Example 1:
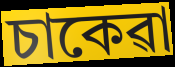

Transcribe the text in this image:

চাকেৱা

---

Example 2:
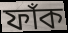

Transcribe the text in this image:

ফাঁক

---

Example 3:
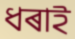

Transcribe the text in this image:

ধৰাই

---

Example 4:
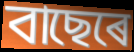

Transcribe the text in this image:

বাছেৰে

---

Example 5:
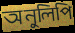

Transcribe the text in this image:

অনুলিপি